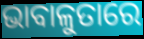
ଭାବାଳୁତାରେ